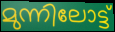
മുന്നിലോട്ട്